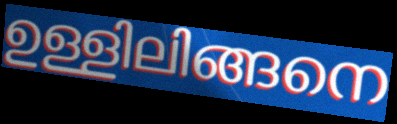
ഉള്ളിലിങ്ങനെ